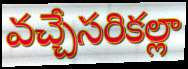
వచ్చేసరికల్లా